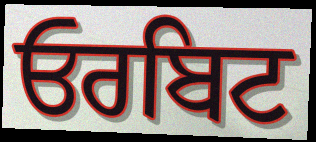
ਓਰਬਿਟ